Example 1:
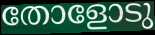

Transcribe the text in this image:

തോളോടു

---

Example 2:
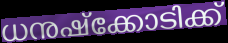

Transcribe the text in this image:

ധനുഷ്ക്കോടിക്ക്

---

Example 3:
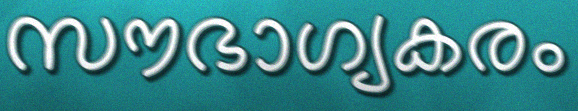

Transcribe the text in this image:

സൗഭാഗ്യകരം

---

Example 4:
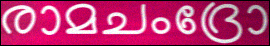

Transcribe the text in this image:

രാമചംദ്രോ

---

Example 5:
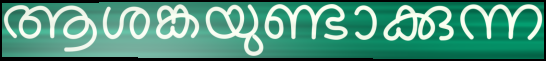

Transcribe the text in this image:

ആശങ്കയുണ്ടാക്കുന്ന